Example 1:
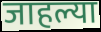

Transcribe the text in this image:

जाहल्या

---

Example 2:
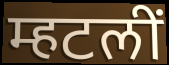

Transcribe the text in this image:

म्हटलीं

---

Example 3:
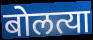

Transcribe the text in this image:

बोलत्या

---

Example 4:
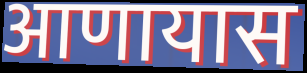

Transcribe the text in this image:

आणायास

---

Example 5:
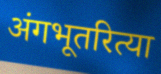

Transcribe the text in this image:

अंगभूतरित्या